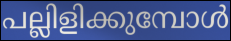
പല്ലിളിക്കുമ്പോൾ